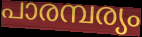
പാരമ്പര്യം